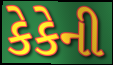
કેકેની